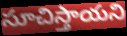
సూచిస్తాయని